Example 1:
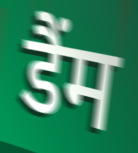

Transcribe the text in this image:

डैंम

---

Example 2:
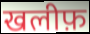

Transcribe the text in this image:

खलीफ़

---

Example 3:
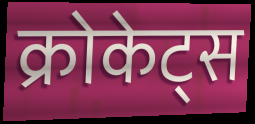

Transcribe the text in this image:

क्रोकेट्स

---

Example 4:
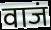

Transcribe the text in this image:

वाजं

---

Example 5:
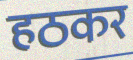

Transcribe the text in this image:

हठकर